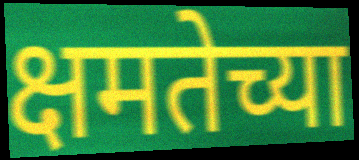
क्षमतेच्या